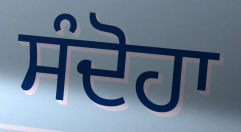
ਸੰਦੋਹਾ